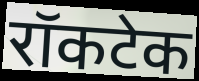
रॉकटेक